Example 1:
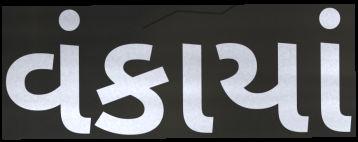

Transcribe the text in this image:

વંકાયાં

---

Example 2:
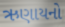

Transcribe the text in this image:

ઋણાયનો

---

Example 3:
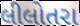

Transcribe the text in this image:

લીલોતરા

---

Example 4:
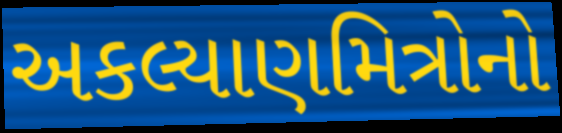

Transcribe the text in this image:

અકલ્યાણમિત્રોનો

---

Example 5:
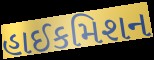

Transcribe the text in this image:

હાઈકમિશન